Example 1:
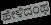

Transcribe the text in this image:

ಹೇಳಿದಂಥ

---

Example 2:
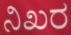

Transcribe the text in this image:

ನಿಖರ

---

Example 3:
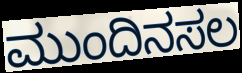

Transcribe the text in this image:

ಮುಂದಿನಸಲ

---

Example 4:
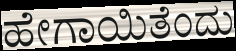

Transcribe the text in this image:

ಹೇಗಾಯಿತೆಂದು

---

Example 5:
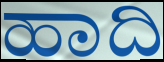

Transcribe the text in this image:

ಹಾದಿ